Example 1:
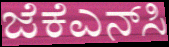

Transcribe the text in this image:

ಜೆಕೆಎನ್‌ಸಿ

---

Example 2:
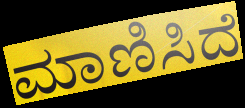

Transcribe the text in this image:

ಮಾಣಿಸಿದೆ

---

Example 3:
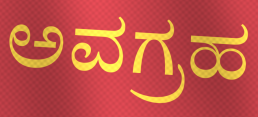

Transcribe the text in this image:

ಅವಗ್ರಹ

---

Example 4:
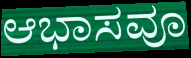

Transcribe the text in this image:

ಆಭಾಸವೂ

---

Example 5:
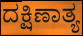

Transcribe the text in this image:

ದಕ್ಷಿಣಾತ್ಯ